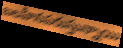
బలహీనపరుస్తున్నాయి